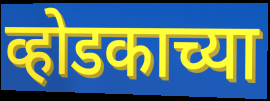
व्होडकाच्या